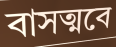
বাসত্মবে